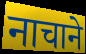
नाचाने